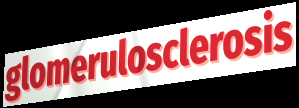
glomerulosclerosis